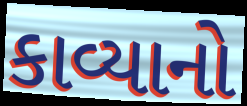
કાવ્યાનો